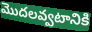
మొదలవ్వటానికి